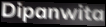
Dipanwita